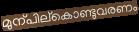
മുന്പില്കൊണ്ടുവരണം